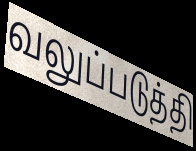
வலுப்படுத்தி